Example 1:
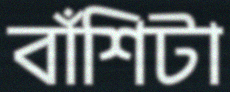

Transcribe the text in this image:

বাঁশিটা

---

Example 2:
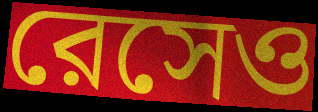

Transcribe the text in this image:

রেসেও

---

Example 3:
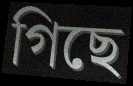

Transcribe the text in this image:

গিছে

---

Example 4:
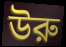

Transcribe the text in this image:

উরু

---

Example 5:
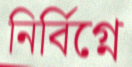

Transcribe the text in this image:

নির্বিগ্নে